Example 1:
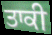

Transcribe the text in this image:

ਤਾਕੀ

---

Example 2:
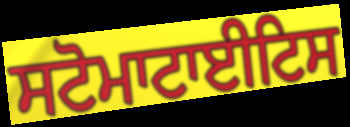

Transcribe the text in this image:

ਸਟੋਮਾਟਾਈਟਿਸ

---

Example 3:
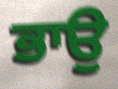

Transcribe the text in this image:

ਭਾਉ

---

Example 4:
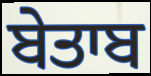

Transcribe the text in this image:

ਬੇਤਾਬ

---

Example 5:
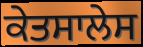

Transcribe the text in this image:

ਕੇਤਸਾਲੇਸ